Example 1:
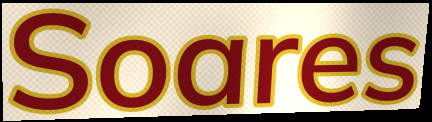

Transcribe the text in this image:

Soares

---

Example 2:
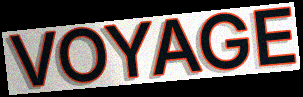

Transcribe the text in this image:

VOYAGE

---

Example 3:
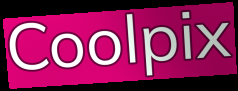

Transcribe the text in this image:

Coolpix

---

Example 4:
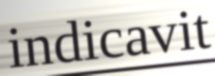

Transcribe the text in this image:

indicavit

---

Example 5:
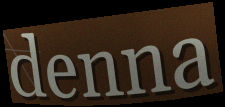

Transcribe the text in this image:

denna